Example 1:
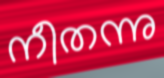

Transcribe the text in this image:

നീതന്നു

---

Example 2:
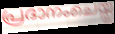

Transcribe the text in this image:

പ്രദാനംചെയ്തു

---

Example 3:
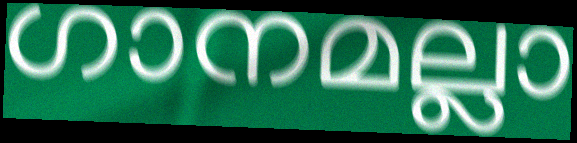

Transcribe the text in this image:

ഗാനമല്ലാ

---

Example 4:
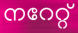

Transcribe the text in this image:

നറേറ്റ്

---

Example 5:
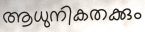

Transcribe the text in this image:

ആധുനികതക്കും